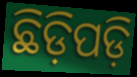
ଛିଡ଼ିପଡ଼ି